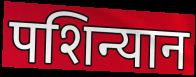
पशिन्यान